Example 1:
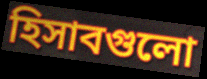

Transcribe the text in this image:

হিসাবগুলো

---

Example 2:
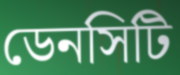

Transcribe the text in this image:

ডেনসিটি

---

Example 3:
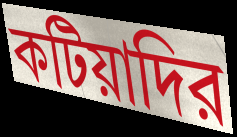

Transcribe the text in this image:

কটিয়াদির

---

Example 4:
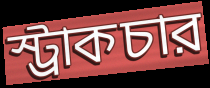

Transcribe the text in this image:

স্ট্রাকচার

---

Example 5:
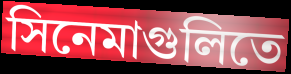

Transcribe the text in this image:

সিনেমাগুলিতে